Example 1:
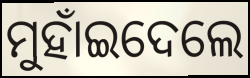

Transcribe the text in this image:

ମୁହାଁଇଦେଲେ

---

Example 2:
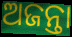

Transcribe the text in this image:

ଅଜନ୍ତା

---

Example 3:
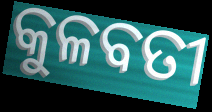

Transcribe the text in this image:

କୁଳବତୀ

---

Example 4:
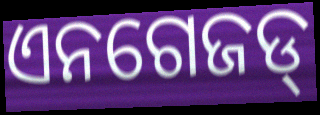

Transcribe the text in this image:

ଏନଗେଜଡ୍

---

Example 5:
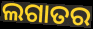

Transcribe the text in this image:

ଲଗାତର